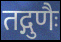
तद्गुणैः